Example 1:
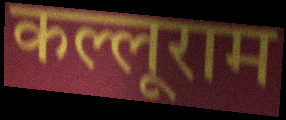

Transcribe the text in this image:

कल्लूराम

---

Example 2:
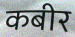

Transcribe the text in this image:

कबीर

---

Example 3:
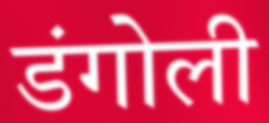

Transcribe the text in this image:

डंगोली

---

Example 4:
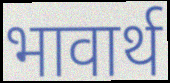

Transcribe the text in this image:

भावार्थ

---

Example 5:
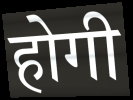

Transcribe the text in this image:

होगी